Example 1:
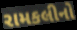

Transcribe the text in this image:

રામકલીનો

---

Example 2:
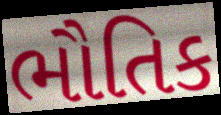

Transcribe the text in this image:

ભૌતિક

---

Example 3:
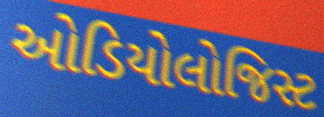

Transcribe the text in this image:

ઓડિયોલોજિસ્ટ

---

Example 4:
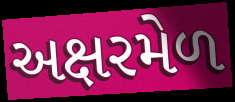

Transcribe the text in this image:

અક્ષરમેળ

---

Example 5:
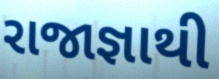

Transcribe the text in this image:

રાજાજ્ઞાથી